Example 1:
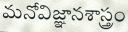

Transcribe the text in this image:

మనోవిజ్ఞానశాస్త్రం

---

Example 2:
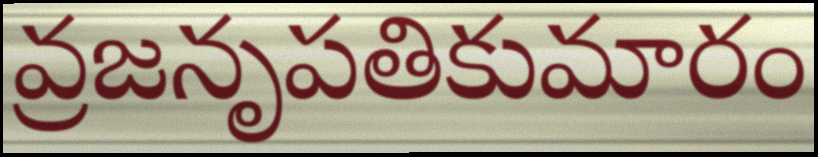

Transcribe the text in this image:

వ్రజనృపతికుమారం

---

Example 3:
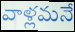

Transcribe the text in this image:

వాళ్లమనే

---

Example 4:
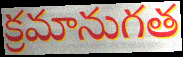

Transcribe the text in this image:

క్రమానుగత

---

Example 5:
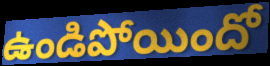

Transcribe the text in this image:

ఉండిపోయిందో